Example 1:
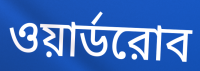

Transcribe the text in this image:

ওয়ার্ডরোব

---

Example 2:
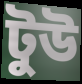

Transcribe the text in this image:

টুউ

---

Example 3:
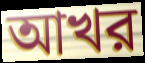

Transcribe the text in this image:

আখর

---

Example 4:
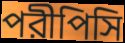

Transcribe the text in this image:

পরীপিসি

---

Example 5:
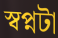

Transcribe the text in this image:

স্বপ্নটা